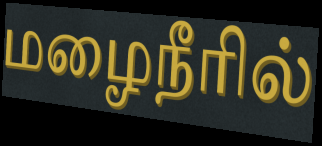
மழைநீரில்